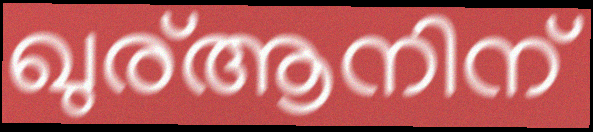
ഖുര്ആനിന്